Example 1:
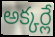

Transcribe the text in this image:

అక్కర్లే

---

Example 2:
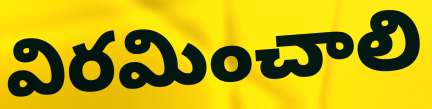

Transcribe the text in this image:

విరమించాలి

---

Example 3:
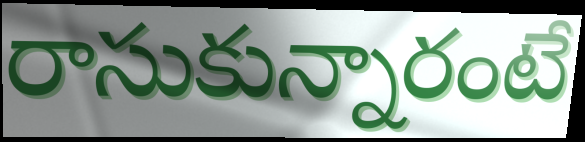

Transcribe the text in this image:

రాసుకున్నారంటే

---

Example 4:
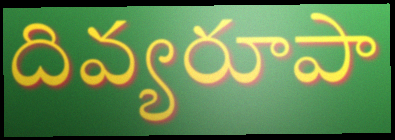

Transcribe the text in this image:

దివ్యరూపా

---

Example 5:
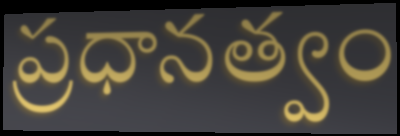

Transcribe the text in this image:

ప్రధానత్వం